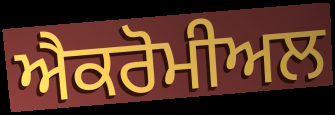
ਐਕਰੋਮੀਅਲ